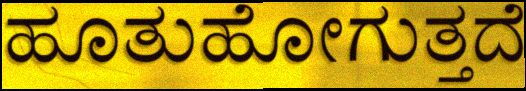
ಹೂತುಹೋಗುತ್ತದೆ